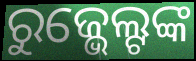
ରୁଜ୍ଭେଲ୍ଟଙ୍କ